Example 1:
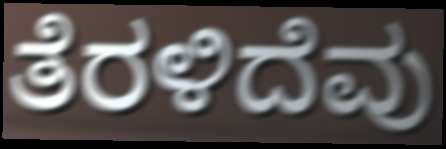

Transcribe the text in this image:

ತೆರಳಿದೆವು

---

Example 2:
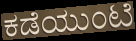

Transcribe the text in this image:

ಕಡೆಯುಂಟೆ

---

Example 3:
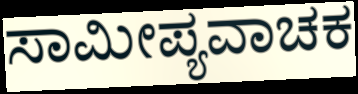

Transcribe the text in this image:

ಸಾಮೀಪ್ಯವಾಚಕ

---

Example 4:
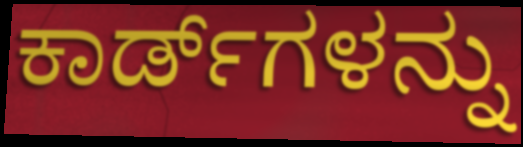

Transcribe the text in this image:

ಕಾರ್ಡ್‌ಗಳನ್ನು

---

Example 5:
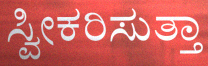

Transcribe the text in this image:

ಸ್ವೀಕರಿಸುತ್ತಾ